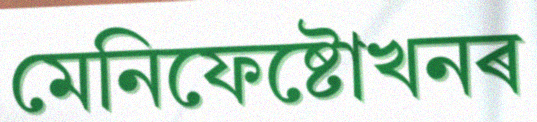
মেনিফেষ্টোখনৰ